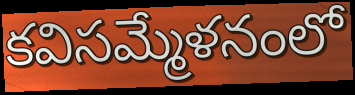
కవిసమ్మేళనంలో